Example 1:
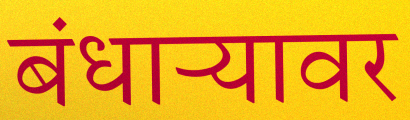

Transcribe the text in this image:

बंधाऱ्यावर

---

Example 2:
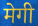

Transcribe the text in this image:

मेगी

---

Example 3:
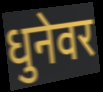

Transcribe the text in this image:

धुनेवर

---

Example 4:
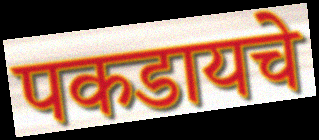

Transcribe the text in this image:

पकडायचे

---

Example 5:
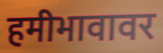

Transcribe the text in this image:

हमीभावावर